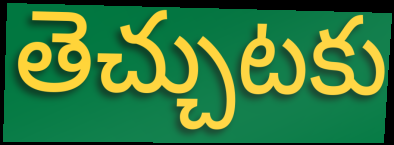
తెచ్చుటకు